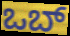
ಒಬ್